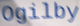
Ogilby